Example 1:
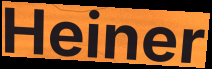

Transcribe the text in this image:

Heiner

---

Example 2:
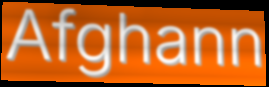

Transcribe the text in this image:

Afghann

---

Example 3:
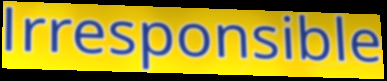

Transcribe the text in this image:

Irresponsible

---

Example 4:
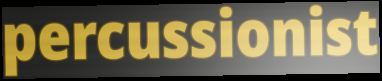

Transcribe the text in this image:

percussionist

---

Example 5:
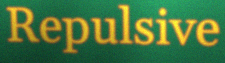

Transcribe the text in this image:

Repulsive